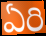
ఏరి